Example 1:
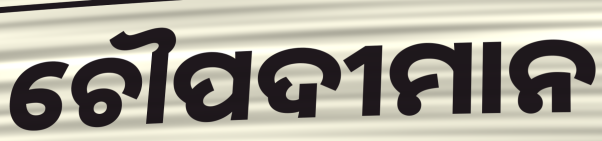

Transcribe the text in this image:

ଚୌପଦୀମାନ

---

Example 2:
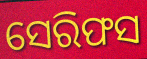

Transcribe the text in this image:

ସେରିଫସ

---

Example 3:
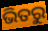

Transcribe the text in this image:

ଭିତରୁ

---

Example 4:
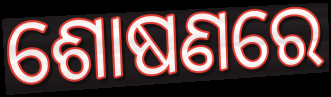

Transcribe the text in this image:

ଶୋଷଣରେ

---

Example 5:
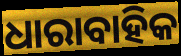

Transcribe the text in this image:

ଧାରାବାହିକ